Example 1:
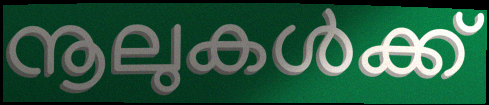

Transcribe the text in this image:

നൂലുകൾക്ക്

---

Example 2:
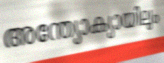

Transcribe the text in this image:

അന്ത്യോക്യായിലും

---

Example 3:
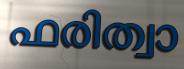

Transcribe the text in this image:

ഫരിത്വാ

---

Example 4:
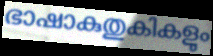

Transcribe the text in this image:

ഭാഷാകുതുകികളും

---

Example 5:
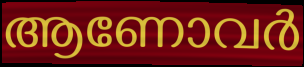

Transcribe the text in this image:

ആണോവർ